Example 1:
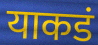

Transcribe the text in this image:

याकडं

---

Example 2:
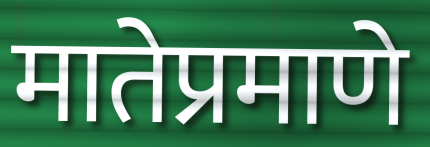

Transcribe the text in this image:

मातेप्रमाणे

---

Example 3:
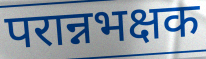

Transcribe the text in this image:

परान्नभक्षक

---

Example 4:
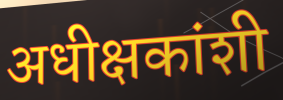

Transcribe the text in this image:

अधीक्षकांशी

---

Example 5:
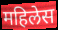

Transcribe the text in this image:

महिलेस